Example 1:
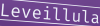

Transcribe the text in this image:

Leveillula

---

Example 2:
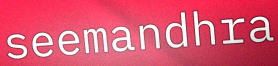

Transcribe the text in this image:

seemandhra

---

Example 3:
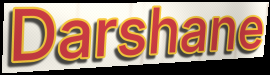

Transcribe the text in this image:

Darshane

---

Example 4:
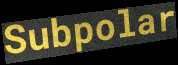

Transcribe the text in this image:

Subpolar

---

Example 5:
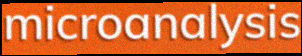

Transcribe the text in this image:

microanalysis